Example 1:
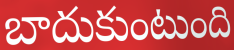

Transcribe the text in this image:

బాదుకుంటుంది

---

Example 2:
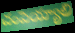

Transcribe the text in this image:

చంపెయ్యాలి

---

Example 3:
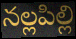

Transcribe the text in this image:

నల్లపిల్లి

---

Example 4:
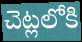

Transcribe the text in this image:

చెట్లలోకి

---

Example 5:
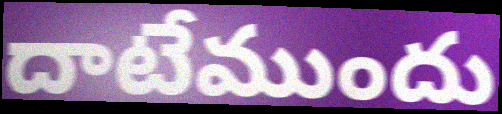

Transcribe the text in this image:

దాటేముందు